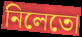
নিলেতো